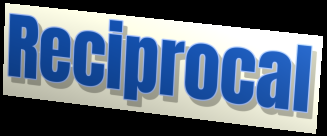
Reciprocal